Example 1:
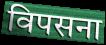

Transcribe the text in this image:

विपसना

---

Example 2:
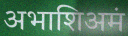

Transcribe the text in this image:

अभाशिअमं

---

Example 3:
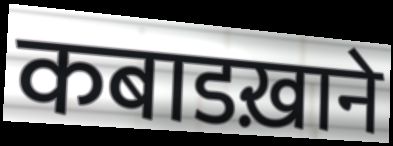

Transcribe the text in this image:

कबाडख़ाने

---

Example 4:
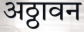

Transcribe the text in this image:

अठ्ठावन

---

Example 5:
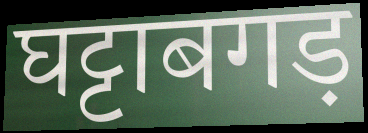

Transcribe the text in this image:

घट्टाबगड़